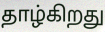
தாழ்கிறது